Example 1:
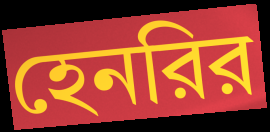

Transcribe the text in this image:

হেনরির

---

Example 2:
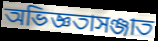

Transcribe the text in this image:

অভিজ্ঞতাসঞ্জাত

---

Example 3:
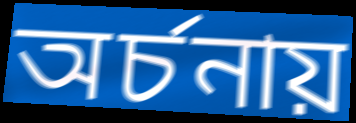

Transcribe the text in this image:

অর্চনায়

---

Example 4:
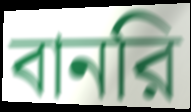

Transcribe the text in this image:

বানরি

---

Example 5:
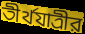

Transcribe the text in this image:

তীর্থযাত্রীর